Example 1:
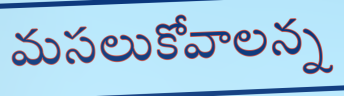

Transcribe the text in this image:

మసలుకోవాలన్న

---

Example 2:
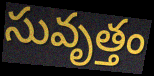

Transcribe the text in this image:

సువృత్తం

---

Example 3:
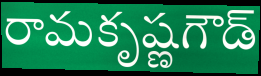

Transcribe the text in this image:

రామకృష్ణగౌడ్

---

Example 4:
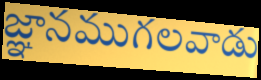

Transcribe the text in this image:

జ్ఞానముగలవాడు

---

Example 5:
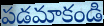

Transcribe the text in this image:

పడమాకండి